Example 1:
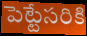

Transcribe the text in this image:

పెట్టేసరికి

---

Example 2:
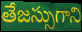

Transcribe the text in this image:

తేజస్సుగాని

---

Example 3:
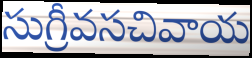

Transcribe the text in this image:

సుగ్రీవసచివాయ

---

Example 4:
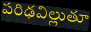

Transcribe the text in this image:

పరిఢవిల్లుతూ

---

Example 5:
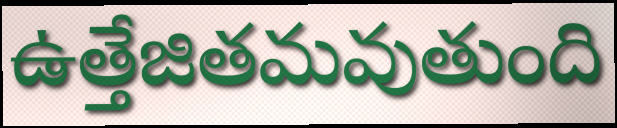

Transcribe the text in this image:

ఉత్తేజితమవుతుంది